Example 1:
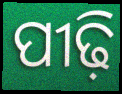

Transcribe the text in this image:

ପୀଢ଼ି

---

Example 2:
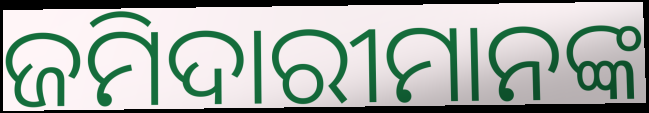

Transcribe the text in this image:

ଜମିଦାରୀମାନଙ୍କ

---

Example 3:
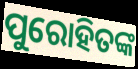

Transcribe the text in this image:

ପୁରୋହିତଙ୍କ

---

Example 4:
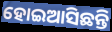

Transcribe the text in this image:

ହୋଇଆସିଛନ୍ତି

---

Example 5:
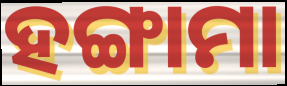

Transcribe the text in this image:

ହଙ୍ଗାମା